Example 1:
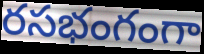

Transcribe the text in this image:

రసభంగంగా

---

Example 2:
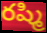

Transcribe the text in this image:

రష్మి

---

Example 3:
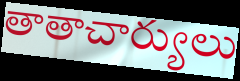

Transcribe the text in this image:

తాతాచార్యులు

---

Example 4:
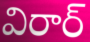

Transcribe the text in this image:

విరార్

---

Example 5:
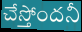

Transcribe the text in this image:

చేస్తోందనీ